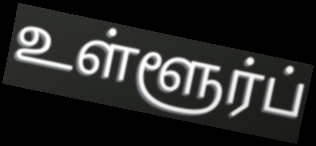
உள்ளூர்ப்